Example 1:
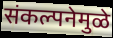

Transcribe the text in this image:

संकल्पनेमुळे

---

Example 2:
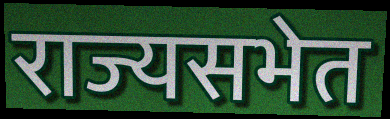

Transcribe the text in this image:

राज्यसभेत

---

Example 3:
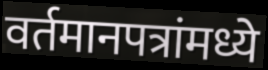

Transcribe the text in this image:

वर्तमानपत्रांमध्ये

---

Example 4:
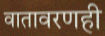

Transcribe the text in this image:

वातावरणही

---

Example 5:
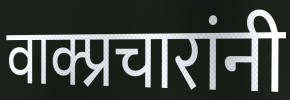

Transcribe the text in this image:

वाक्प्रचारांनी